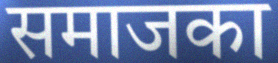
समाजका